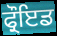
ਫ੍ਰੌਇਡ